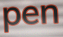
pen